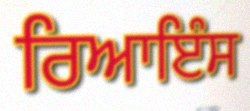
ਰਿਆਇੰਸ